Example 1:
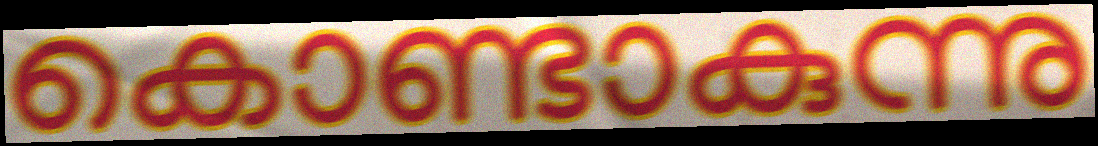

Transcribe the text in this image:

കൊണ്ടാകുന്നു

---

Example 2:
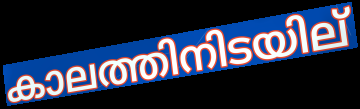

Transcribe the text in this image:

കാലത്തിനിടയില്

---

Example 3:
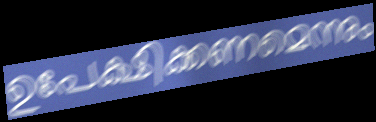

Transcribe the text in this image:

ഉപേക്ഷിക്കണമെന്നും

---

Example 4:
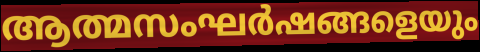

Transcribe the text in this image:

ആത്മസംഘർഷങ്ങളെയും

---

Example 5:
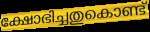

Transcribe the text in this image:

ക്ഷോഭിച്ചതുകൊണ്ട്